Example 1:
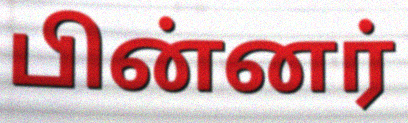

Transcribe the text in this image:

பின்னர்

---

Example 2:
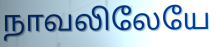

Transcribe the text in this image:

நாவலிலேயே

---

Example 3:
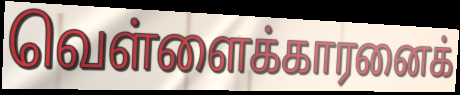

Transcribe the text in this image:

வெள்ளைக்காரனைக்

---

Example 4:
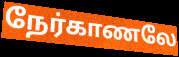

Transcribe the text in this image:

நேர்காணலே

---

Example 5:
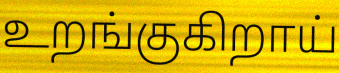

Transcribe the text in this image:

உறங்குகிறாய்